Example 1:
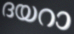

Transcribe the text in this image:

ദയറാ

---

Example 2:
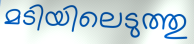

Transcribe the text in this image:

മടിയിലെടുത്തു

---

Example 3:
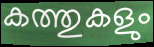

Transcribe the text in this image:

കത്തുകളും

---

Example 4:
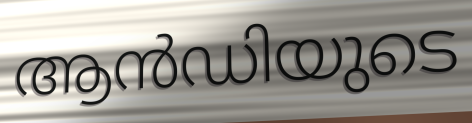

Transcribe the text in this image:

ആൻഡിയുടെ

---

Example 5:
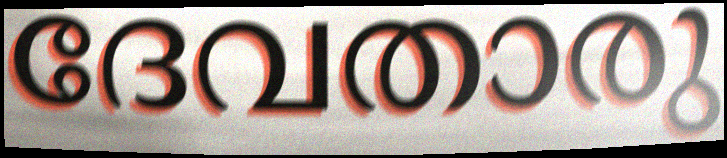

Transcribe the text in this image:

ദേവതാരു